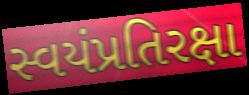
સ્વયંપ્રતિરક્ષા